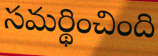
సమర్థించింది